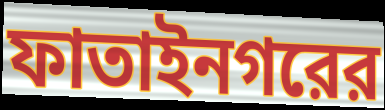
ফাতাইনগরের